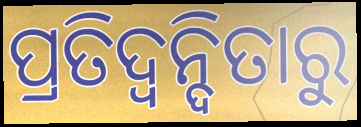
ପ୍ରତିଦ୍ୱନ୍ଦିତାରୁ